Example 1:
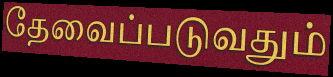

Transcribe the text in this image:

தேவைப்படுவதும்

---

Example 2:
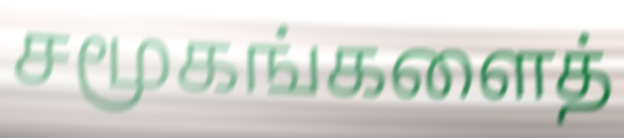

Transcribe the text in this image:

சமூகங்களைத்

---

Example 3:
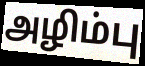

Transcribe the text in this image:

அழிம்பு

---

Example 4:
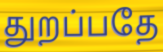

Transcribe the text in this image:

துறப்பதே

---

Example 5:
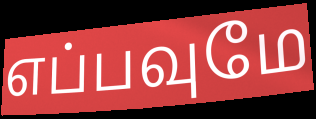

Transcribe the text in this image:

எப்பவுமே